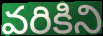
వరికిని